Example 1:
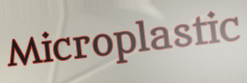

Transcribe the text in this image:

Microplastic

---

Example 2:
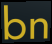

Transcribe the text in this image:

bn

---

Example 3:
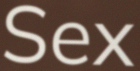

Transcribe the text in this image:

Sex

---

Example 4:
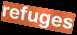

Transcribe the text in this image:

refuges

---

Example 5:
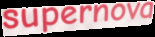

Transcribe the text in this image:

supernova